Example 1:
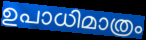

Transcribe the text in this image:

ഉപാധിമാത്രം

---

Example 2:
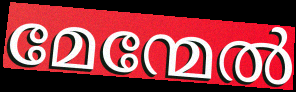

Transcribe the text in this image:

മേന്മേൽ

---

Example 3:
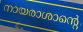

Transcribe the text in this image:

നായരാശാന്റെ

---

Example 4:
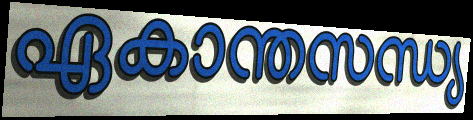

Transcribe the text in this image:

ഏകാന്തസന്ധ്യ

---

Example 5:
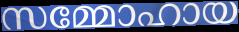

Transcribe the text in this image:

സമ്മോഹായ